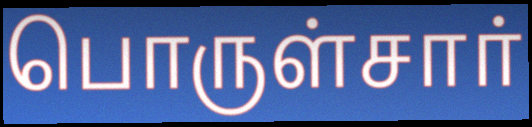
பொருள்சார்